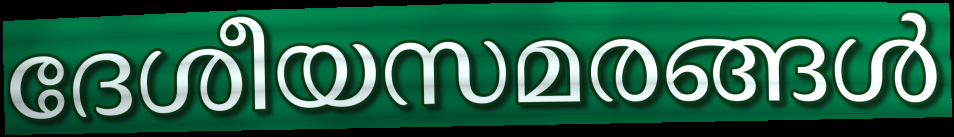
ദേശീയസമരങ്ങൾ